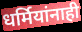
धर्मियांनाही